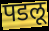
पडलू